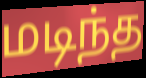
மடிந்த